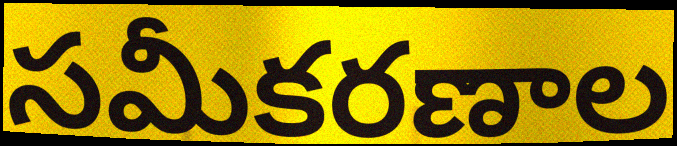
సమీకరణాల